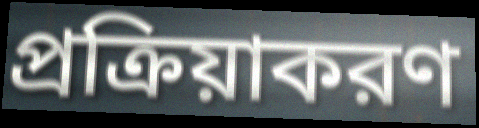
প্রক্রিয়াকরণ